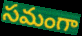
సమంగా